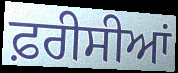
ਫ਼ਰੀਸੀਆਂ